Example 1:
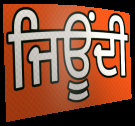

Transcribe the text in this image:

ਜਿਊਂਦੀ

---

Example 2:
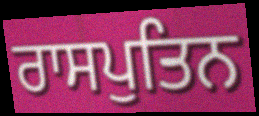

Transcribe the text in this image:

ਰਾਸਪੁਤਿਨ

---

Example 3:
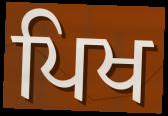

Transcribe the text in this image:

ਪਿਖ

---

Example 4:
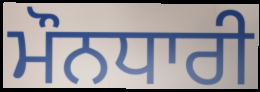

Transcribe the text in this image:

ਮੌਨਧਾਰੀ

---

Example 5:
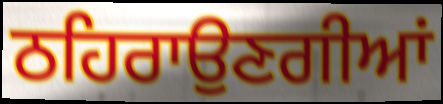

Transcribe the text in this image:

ਠਹਿਰਾਉਣਗੀਆਂ